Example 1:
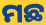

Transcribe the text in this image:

ମଛ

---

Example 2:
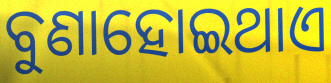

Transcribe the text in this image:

ବୁଣାହୋଇଥାଏ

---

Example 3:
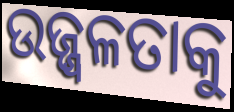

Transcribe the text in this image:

ଉଜ୍ଜ୍ୱଳତାକୁ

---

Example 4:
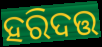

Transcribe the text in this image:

ହରିଦତ୍ତ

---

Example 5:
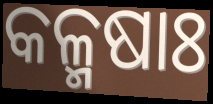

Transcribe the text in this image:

କଳ୍ମଷାଃ